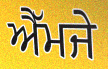
ਐੱਮਜੇ